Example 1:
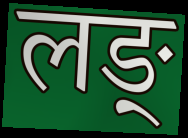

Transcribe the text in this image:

लङ्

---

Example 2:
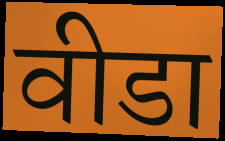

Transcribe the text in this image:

वीडा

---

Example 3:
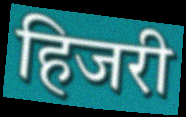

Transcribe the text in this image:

हिजरी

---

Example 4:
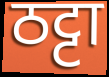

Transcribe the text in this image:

ठट्टा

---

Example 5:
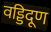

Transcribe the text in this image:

वड्डिदूण